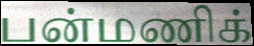
பன்மணிக்